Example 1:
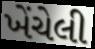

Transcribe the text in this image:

ખેંચેલી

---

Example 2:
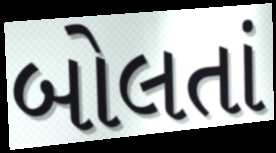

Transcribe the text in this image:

બોલતાં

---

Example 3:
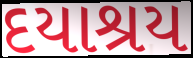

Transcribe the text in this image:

દયાશ્રય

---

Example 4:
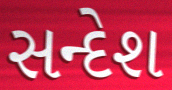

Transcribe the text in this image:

સન્દેશ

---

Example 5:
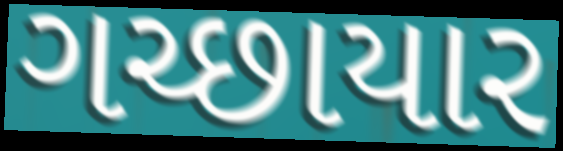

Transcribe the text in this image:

ગચ્છાયાર